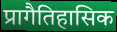
प्रागैतिहासिक